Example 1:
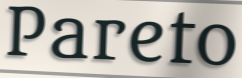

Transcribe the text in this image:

Pareto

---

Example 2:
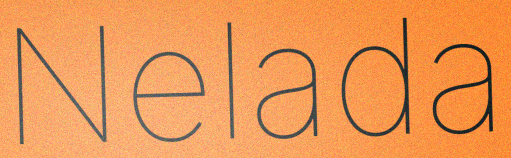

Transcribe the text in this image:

Nelada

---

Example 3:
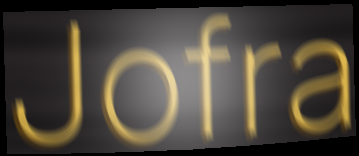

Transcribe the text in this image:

Jofra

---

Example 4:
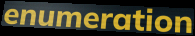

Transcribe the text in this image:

enumeration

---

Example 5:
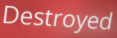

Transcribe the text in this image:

Destroyed